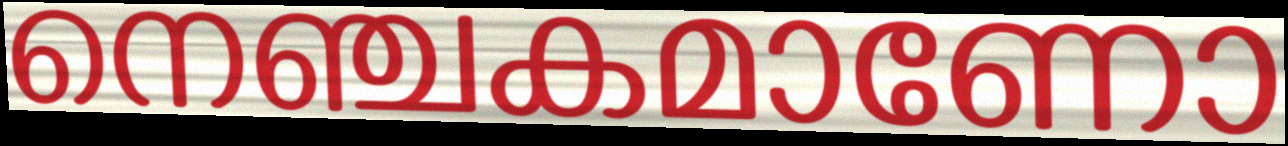
നെഞ്ചകമാണോ